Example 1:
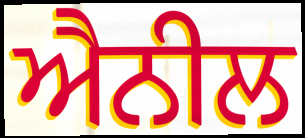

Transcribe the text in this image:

ਐਨੀਲ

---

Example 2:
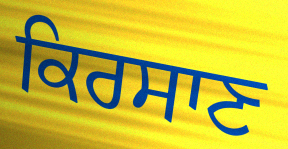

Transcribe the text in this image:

ਕਿਰਸਾਣ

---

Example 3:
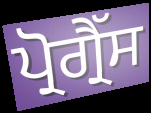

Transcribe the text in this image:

ਪ੍ਰੋਗ੍ਰੈੱਸ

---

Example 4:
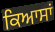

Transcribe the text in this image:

ਕਿਆਸਾਂ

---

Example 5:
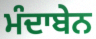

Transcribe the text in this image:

ਮੰਦਾਬੇਨ